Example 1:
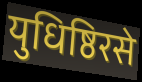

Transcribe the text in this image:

युधिष्ठिरसे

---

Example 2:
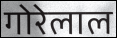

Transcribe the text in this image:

गोरेलाल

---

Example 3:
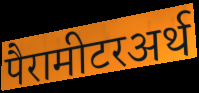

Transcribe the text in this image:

पैरामीटरअर्थ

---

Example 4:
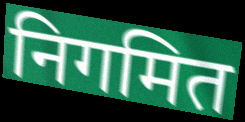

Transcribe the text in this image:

निगमित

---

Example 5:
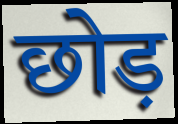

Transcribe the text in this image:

छोड़